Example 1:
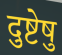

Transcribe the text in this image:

दुष्टेषु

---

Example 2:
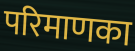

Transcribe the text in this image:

परिमाणका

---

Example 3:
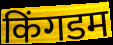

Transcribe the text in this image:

किंगडम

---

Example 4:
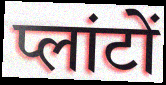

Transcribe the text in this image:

प्लांटों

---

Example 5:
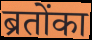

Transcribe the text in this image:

ब्रतोंका